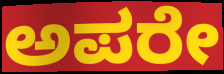
ಅಪರೇ